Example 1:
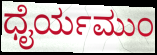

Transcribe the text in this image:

ಧೈರ್ಯಮುಂ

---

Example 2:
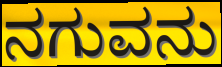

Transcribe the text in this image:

ನಗುವನು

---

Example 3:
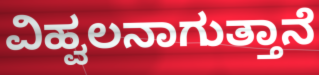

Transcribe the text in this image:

ವಿಹ್ವಲನಾಗುತ್ತಾನೆ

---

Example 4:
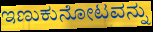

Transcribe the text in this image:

ಇಣುಕುನೋಟವನ್ನು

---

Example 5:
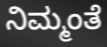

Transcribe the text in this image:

ನಿಮ್ಮಂತೆ